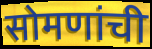
सोमणांची